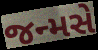
જન્મસે